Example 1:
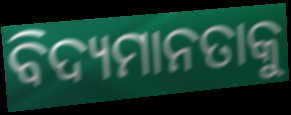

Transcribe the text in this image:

ବିଦ୍ୟମାନତାକୁ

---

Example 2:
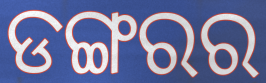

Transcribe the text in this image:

ଡଙ୍ଗରର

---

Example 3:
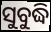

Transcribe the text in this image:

ସୁବୁଦ୍ଧି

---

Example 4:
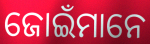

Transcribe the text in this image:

ଜୋଇଁମାନେ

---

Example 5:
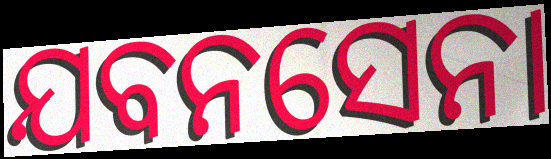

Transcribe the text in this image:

ଯବନସେନା